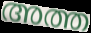
അത്ത